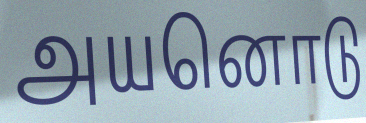
அயனொடு